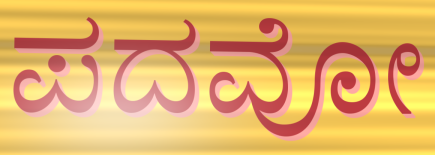
ಪದವೋ